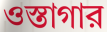
ওস্তাগার